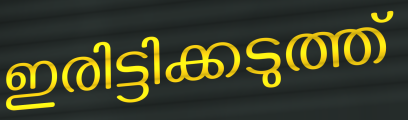
ഇരിട്ടിക്കടുത്ത്